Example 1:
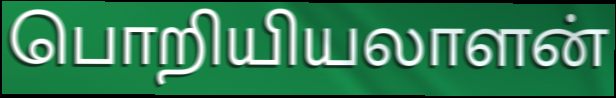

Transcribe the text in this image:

பொறியியலாளன்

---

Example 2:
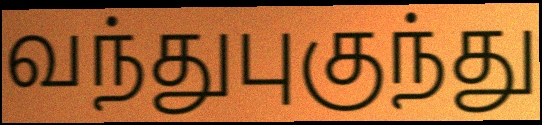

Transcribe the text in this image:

வந்துபுகுந்து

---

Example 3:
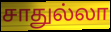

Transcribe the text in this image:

சாதுல்லா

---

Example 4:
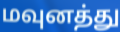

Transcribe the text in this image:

மவுனத்து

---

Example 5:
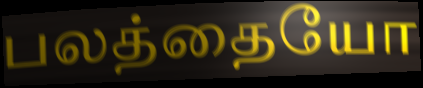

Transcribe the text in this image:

பலத்தையோ